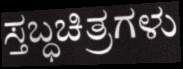
ಸ್ತಬ್ಧಚಿತ್ರಗಳು